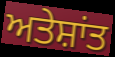
ਅਤੇਸ਼ਾਂਤ